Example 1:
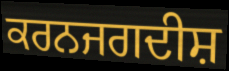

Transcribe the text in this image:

ਕਰਨਜਗਦੀਸ਼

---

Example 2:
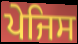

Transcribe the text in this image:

ਪੇਜਿਸ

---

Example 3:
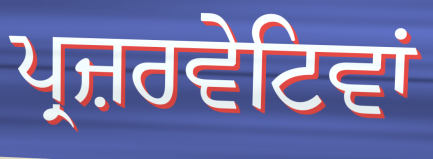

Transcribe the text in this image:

ਪ੍ਰਜ਼ਰਵੇਟਿਵਾਂ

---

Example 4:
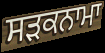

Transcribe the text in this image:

ਸਡ਼ਕਨਾਮਾ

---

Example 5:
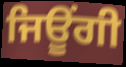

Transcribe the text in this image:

ਜਿਊਂਗੀ